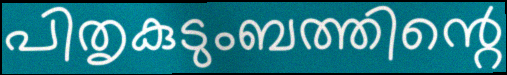
പിതൃകുടുംബത്തിന്റെ